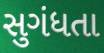
સુગંધતા